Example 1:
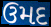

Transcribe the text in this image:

ઉમદ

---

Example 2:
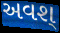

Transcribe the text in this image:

અવશ્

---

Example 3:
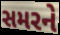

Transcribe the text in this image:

સમરને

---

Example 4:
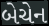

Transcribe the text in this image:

બેચેન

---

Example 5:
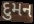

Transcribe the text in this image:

દુમન